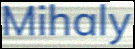
Mihaly